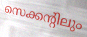
സെക്കന്റിലും